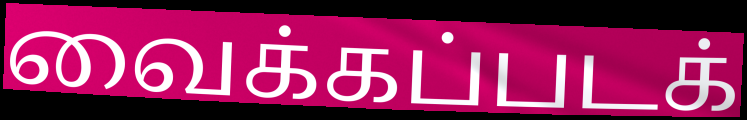
வைக்கப்படக்